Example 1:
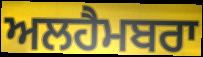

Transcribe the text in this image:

ਅਲਹੈਮਬਰਾ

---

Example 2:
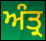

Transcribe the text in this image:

ਅੰਤ੍ਰ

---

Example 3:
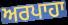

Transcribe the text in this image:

ਅਰਪਾਹਾ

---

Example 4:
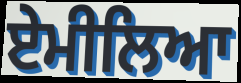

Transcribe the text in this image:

ਏਮੀਲਿਆ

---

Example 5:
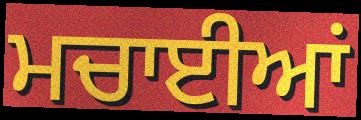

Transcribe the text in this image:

ਮਚਾਈਆਂ